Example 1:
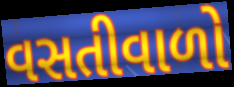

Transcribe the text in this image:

વસતીવાળો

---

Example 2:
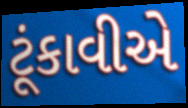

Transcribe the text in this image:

ટૂંકાવીએ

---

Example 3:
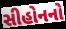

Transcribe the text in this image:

સીહોનનો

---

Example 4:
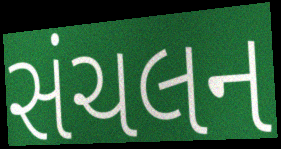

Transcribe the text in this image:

સંચલન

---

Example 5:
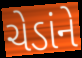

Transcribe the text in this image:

ચેડાંને